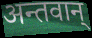
अन्तवान्